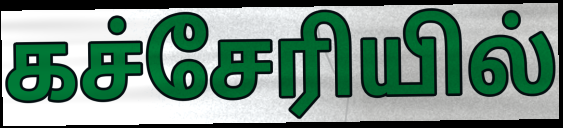
கச்சேரியில்